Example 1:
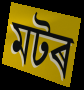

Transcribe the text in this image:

মটৰ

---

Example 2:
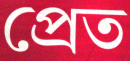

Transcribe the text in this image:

প্ৰেত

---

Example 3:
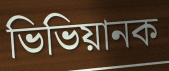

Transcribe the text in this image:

ভিভিয়ানক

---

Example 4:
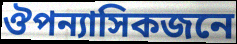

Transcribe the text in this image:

ঔপন্যাসিকজনে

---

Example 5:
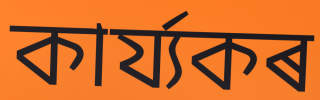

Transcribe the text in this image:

কাৰ্য্যকৰ